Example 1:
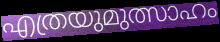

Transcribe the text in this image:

എത്രയുമുത്സാഹം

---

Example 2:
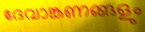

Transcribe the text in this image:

ദേവാങ്കണങ്ങളും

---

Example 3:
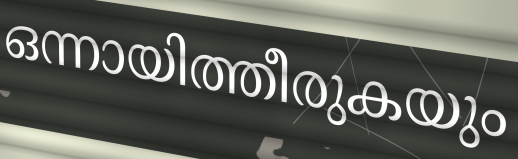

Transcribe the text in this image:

ഒന്നായിത്തീരുകയും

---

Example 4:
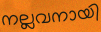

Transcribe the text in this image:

നല്ലവനായി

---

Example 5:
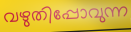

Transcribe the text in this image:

വഴുതിപ്പോവുന്ന